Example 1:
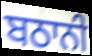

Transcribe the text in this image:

ਬਠਾਨੀ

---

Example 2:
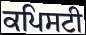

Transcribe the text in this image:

ਕਪਿਸਟੀ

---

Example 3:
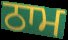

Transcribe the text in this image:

ਠਾਮ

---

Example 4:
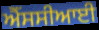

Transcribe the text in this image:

ਐੱਸਸੀਆਈ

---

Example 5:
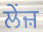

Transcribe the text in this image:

ਲੇਂਜ਼